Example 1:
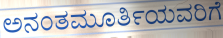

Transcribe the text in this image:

ಅನಂತಮೂರ್ತಿಯವರಿಗೆ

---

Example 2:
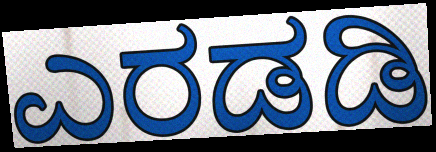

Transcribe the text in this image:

ಎರಡಡಿ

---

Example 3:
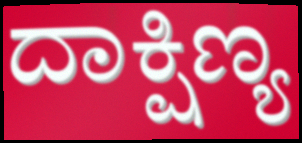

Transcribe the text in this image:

ದಾಕ್ಷಿಣ್ಯ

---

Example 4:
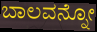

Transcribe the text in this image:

ಬಾಲವನ್ನೋ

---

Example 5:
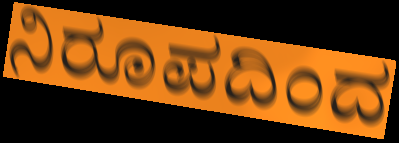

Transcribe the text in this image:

ನಿರೂಪದಿಂದ